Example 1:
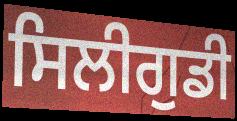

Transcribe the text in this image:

ਸਿਲੀਗੁਡੀ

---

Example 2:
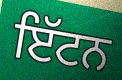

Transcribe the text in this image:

ਇੱਟਨ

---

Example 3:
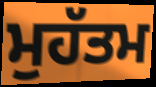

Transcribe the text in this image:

ਮੁਹੱਤਮ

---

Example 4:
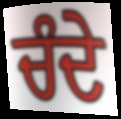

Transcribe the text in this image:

ਚੰਦੇ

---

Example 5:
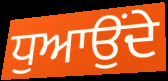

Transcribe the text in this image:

ਧੁਆਉਂਦੇ